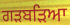
ਗੜਬੜਿਆ